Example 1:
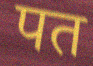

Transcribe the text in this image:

पत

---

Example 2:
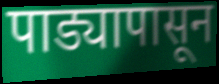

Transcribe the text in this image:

पाड्यापासून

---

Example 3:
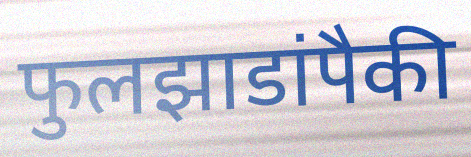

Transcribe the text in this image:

फुलझाडांपैकी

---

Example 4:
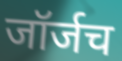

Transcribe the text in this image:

जॉर्जच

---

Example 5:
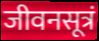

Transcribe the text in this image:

जीवनसूत्रं